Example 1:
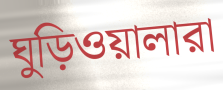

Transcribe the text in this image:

ঘুড়িওয়ালারা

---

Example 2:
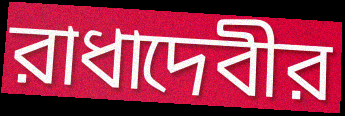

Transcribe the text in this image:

রাধাদেবীর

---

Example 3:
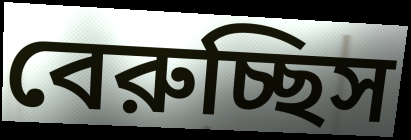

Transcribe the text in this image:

বেরুচ্ছিস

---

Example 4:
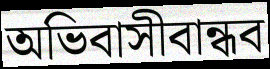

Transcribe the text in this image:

অভিবাসীবান্ধব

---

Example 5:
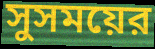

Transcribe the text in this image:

সুসময়ের